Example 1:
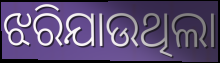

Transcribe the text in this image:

ଝରିଯାଉଥିଲା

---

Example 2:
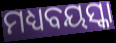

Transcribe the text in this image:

ମଧ୍ୟବୟସ୍କା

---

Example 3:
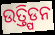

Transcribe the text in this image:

ଉତ୍ତ୍ପିଡନ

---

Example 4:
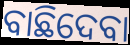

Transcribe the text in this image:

ବାଛିଦେବା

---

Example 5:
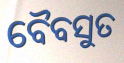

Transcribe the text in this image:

ବୈବସୁତ